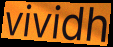
vividh